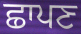
ਛਾਪਣ